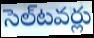
సెల్‌టవర్లు